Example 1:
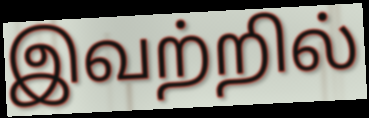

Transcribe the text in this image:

இவற்றில்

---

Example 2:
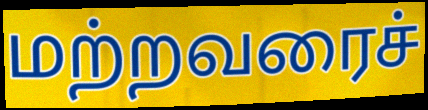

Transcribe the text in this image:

மற்றவரைச்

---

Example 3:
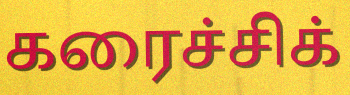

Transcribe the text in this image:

கரைச்சிக்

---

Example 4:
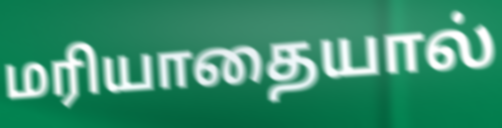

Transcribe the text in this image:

மரியாதையால்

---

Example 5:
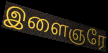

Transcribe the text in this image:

இளைஞரே